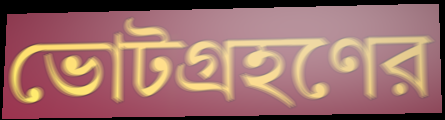
ভোটগ্রহণের